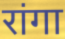
रांगा